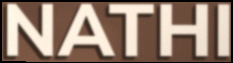
NATHI